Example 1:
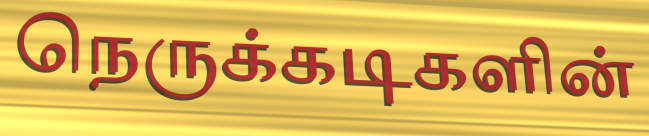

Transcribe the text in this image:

நெருக்கடிகளின்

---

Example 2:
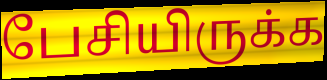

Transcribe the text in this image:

பேசியிருக்க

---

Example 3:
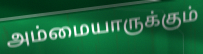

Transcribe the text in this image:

அம்மையாருக்கும்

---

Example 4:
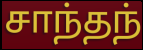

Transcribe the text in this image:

சாந்தந்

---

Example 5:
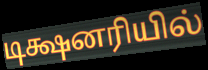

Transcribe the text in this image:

டிக்ஷனரியில்